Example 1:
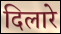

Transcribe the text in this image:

दिलारे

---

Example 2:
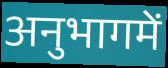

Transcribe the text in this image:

अनुभागमें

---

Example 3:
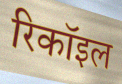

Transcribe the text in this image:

रिकॉइल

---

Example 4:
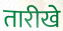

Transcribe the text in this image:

तारीखे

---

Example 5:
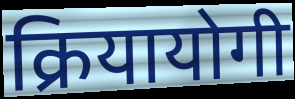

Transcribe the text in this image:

क्रियायोगी